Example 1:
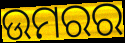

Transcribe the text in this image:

ଉମରର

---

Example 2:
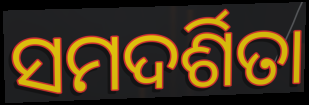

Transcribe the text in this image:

ସମଦର୍ଶିତା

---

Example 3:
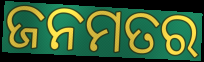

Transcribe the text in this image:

ଜନମତର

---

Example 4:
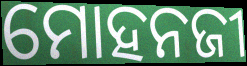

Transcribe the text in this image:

ମୋହନଜୀ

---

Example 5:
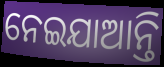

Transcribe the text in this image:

ନେଇଯାଆନ୍ତି